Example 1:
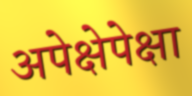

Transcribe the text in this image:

अपेक्षेपेक्षा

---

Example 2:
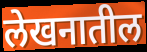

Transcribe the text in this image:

लेखनातील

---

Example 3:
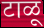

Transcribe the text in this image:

टाळू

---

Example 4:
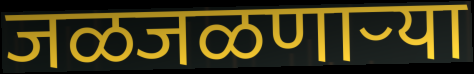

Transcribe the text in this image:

जळजळणाऱ्या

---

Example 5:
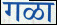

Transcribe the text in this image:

गळा